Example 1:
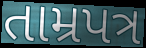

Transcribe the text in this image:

તામ્રપત્ર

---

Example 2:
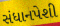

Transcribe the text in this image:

સંધાનપેશી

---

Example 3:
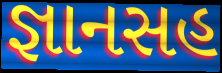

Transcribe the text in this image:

જ્ઞાનસહ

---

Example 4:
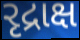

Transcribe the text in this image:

રૃદ્રાક્ષ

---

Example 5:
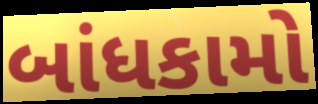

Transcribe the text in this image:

બાંધકામો